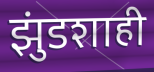
झुंडशाही